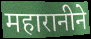
महारानीने